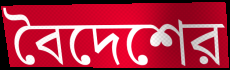
বৈদেশের